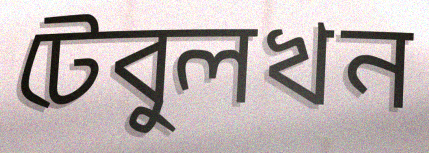
টেবুলখন